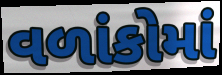
વળાંકોમાં